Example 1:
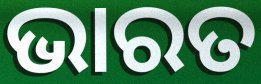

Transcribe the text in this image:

ଭାରତ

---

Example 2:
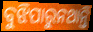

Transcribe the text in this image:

ବୁଝିପାରୁନଥାନ୍ତି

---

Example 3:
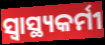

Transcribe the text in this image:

ସ୍ୱାସ୍ଥ୍ୟକର୍ମୀ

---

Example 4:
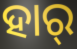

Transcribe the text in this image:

ହାର୍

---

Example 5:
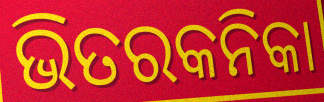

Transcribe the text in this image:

ଭିତରକନିକା